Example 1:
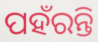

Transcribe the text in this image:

ପହଁରନ୍ତି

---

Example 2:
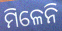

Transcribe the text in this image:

ମିଳେନି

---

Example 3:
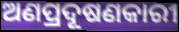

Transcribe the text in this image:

ଅଣପ୍ରଦୂଷଣକାରୀ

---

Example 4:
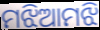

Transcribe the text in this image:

ମଝିଆମଝି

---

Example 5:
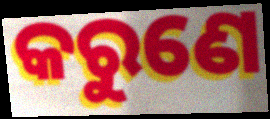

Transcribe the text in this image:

କରୁଣେ